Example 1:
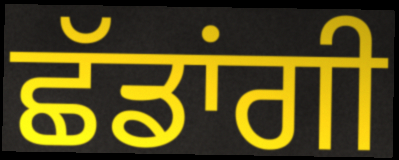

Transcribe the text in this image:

ਛੱਡਾਂਗੀ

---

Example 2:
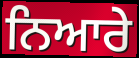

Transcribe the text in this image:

ਨਿਆਰੇ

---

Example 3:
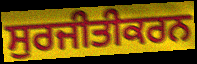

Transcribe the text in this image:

ਸੁਰਜੀਤੀਕਰਨ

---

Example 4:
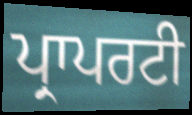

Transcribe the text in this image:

ਪ੍ਰਾਪਰਟੀ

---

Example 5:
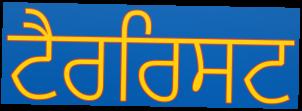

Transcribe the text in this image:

ਟੈਰਰਿਸਟ